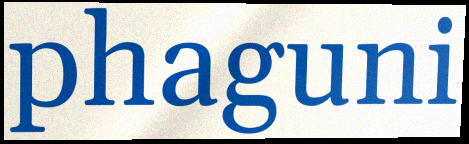
phaguni